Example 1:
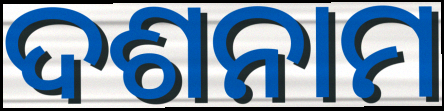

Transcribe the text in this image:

ଦଶନାମ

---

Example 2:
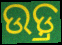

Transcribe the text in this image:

ଉଡ଼୍ର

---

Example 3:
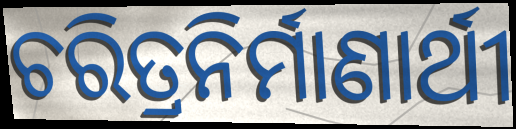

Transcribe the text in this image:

ଚରିତ୍ରନିର୍ମାଣାର୍ଥୀ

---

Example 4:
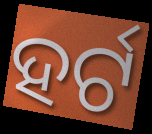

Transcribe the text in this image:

ହର୍ଟ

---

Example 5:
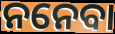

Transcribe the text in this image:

ନନେବା